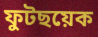
ফুটছয়েক